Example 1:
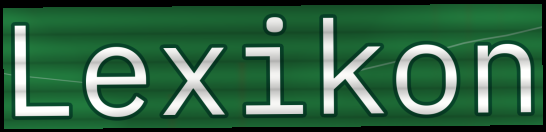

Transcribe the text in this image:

Lexikon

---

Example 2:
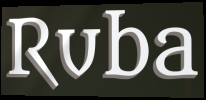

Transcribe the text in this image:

Ruba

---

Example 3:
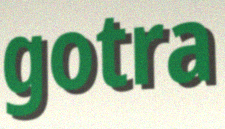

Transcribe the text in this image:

gotra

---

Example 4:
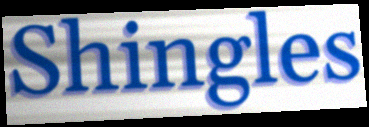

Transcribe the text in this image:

Shingles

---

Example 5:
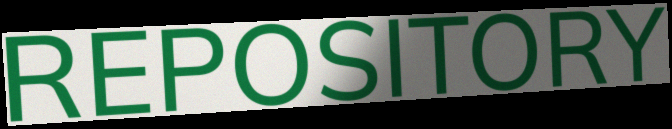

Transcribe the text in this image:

REPOSITORY